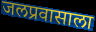
जलप्रवासाला